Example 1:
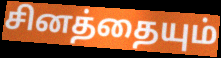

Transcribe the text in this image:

சினத்தையும்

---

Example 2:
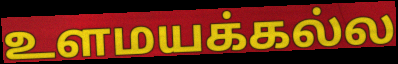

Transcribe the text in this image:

உளமயக்கல்ல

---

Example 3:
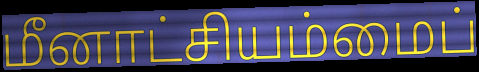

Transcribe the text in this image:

மீனாட்சியம்மைப்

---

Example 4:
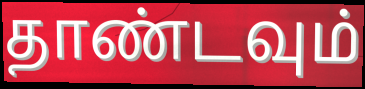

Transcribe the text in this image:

தாண்டவும்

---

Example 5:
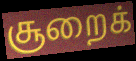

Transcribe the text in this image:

சூறைக்